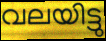
വലയിട്ടു